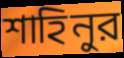
শাহিনুর